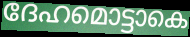
ദേഹമൊട്ടാകെ